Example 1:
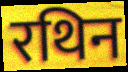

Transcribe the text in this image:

रथिन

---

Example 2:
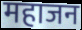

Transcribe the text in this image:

महाजन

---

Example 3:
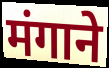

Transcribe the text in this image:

मंगाने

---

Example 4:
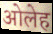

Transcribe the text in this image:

ओलेह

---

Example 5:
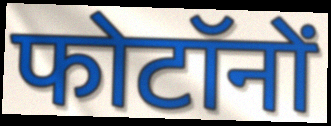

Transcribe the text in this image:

फोटॉनों